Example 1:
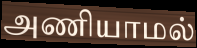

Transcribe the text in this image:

அணியாமல்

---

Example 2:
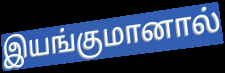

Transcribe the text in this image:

இயங்குமானால்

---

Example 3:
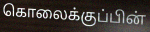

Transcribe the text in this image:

கொலைக்குப்பின்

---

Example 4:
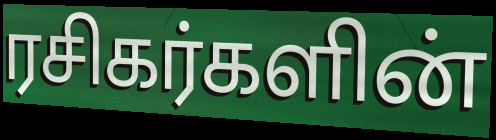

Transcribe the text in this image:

ரசிகர்களின்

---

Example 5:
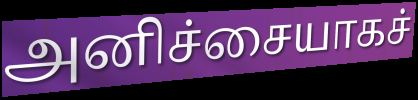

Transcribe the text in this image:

அனிச்சையாகச்